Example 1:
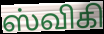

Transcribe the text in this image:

ஸ்விகி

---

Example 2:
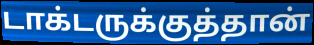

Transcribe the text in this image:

டாக்டருக்குத்தான்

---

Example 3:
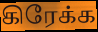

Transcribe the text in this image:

கிரேக்க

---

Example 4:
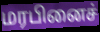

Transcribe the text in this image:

மரபினைச்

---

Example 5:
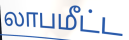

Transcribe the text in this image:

லாபமீட்ட